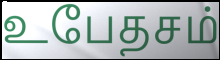
உபேதசம்